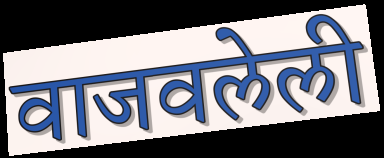
वाजवलेली